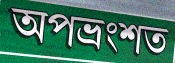
অপভ্ৰংশত